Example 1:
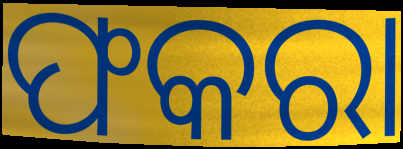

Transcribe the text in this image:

ଫକରା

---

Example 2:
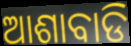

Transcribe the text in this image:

ଆଶାବାଡି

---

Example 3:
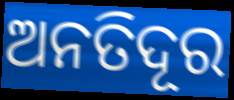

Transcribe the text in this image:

ଅନତିଦୂର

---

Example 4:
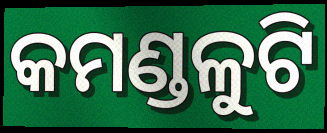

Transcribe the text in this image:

କମଣ୍ଡଳୁଟି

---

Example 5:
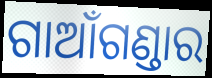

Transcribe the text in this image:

ଗାଆଁଗଣ୍ଡାର